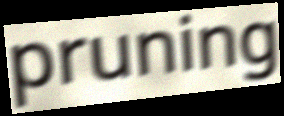
pruning